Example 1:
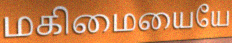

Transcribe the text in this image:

மகிமையையே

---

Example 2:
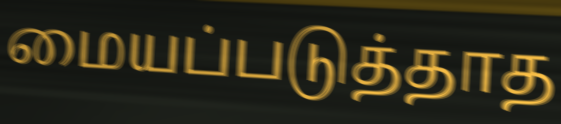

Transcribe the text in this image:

மையப்படுத்தாத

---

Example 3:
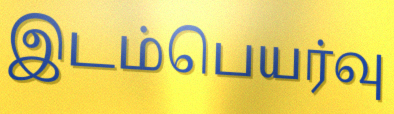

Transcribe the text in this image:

இடம்பெயர்வு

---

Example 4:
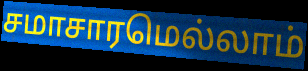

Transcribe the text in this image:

சமாசாரமெல்லாம்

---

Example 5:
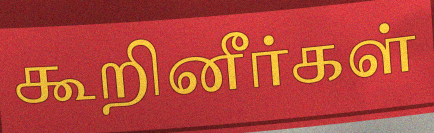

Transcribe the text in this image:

கூறினீர்கள்